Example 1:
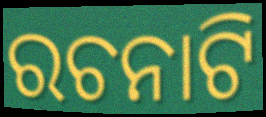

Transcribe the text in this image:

ରଚନାଟି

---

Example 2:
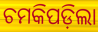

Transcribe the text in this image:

ଚମକିପଡ଼ିଲା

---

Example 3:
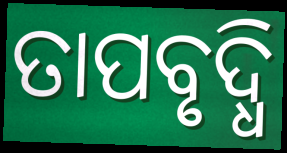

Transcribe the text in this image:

ତାପବୃଦ୍ଧି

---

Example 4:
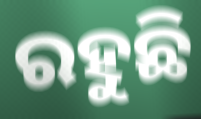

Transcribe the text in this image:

ରହୁଛି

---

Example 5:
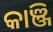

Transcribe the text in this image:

କାଞ୍ଜି